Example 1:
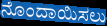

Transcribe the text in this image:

ನೊಂದಾಯಿಸಲು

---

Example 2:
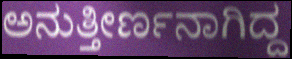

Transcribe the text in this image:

ಅನುತ್ತೀರ್ಣನಾಗಿದ್ದ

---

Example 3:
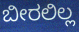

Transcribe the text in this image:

ಬೀರಲಿಲ್ಲ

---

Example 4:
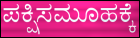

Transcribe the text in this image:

ಪಕ್ಷಿಸಮೂಹಕ್ಕೆ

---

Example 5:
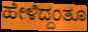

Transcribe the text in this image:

ಹೇಳಿದ್ದಂತೂ